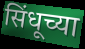
सिंधूच्या